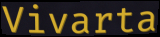
Vivarta